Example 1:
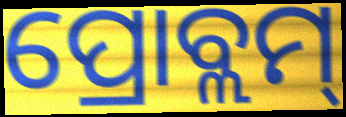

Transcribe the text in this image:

ପ୍ରୋବ୍ଲମ୍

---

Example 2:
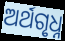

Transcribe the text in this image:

ଅର୍ଥଗୃଧ୍ନ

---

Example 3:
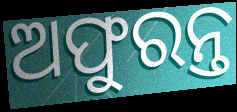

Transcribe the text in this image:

ଅଫୁରନ୍ତ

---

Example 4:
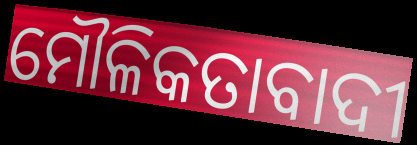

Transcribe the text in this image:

ମୌଳିକତାବାଦୀ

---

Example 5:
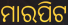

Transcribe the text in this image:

ମାରପିଟ